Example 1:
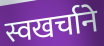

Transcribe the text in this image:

स्वखर्चाने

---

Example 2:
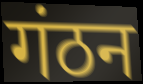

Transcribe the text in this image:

गंठन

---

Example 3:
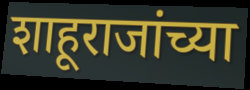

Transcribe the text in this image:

शाहूराजांच्या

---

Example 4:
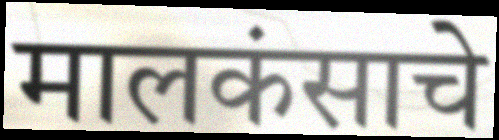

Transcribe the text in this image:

मालकंसाचे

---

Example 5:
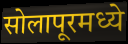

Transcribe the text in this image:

सोलापूरमध्ये